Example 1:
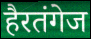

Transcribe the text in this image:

हैरतंगेज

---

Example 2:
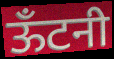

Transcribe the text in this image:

ऊँटनी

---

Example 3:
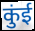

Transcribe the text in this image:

कुंई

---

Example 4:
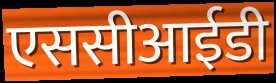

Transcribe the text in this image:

एससीआईडी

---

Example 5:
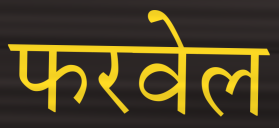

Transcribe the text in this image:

फरवेल